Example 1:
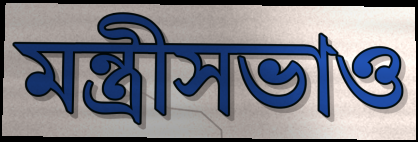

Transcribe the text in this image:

মন্ত্রীসভাও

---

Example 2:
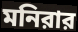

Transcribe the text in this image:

মনিরার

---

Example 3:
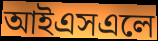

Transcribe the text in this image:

আইএসএলে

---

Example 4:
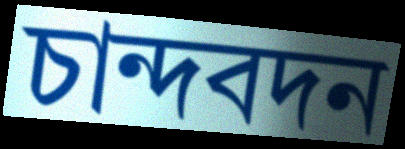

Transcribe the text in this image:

চান্দবদন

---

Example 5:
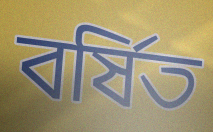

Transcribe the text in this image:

বর্ষিত